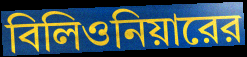
বিলিওনিয়ারের